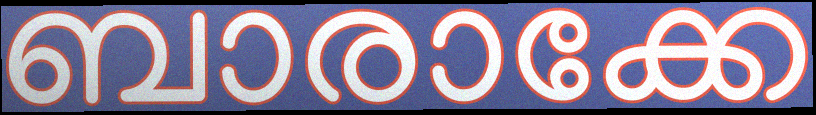
ബാരാക്കേ